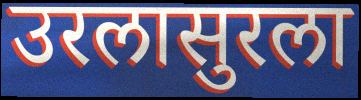
उरलासुरला